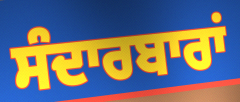
ਸੰਦਾਰਬਾਰਾਂ